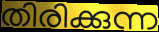
തിരിക്കുന്ന